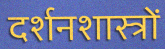
दर्शनशास्त्रों